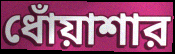
ধোঁয়াশার